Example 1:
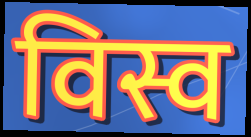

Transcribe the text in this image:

विस्व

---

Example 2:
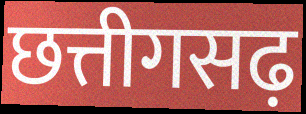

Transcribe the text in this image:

छत्तीगसढ़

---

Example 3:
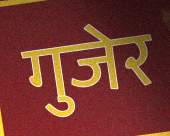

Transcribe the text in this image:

गुजेर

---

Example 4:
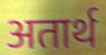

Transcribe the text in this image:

अतार्थ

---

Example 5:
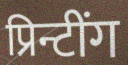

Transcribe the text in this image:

प्रिन्टींग